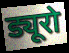
ड्यूरो